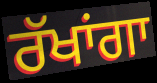
ਰੱਖਾਂਗਾ